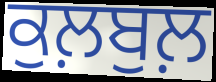
ਕੁਲ਼ਬੁਲ਼